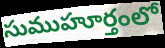
సుముహూర్తంలో